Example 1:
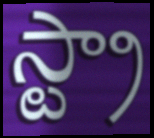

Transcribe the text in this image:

స్ట్రా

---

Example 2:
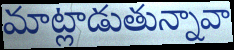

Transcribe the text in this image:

మాట్లాడుతున్నావా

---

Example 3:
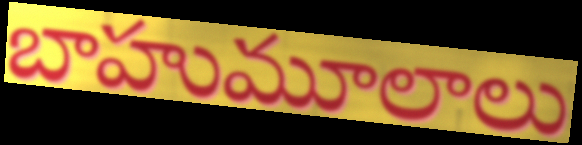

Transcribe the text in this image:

బాహుమూలాలు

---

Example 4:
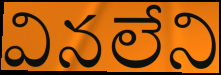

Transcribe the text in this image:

వినలేని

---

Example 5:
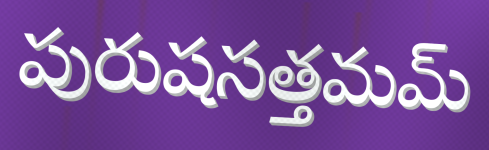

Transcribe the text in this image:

పురుషసత్తమమ్